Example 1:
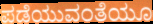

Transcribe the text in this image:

ಪಡೆಯುವಂತೆಯೂ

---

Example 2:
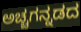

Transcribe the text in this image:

ಅಚ್ಚಗನ್ನಡದ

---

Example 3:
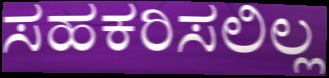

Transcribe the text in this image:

ಸಹಕರಿಸಲಿಲ್ಲ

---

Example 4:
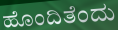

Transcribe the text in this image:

ಹೊಂದಿತೆಂದು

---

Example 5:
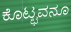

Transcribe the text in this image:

ಕೊಟ್ಟವನೂ